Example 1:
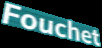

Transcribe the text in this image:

Fouchet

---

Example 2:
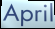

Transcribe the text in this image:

April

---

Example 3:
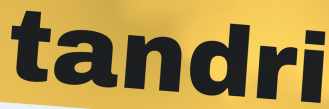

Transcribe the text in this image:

tandri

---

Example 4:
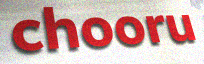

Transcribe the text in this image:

chooru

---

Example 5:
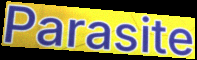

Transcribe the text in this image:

Parasite